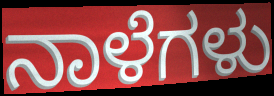
ನಾಳೆಗಳು